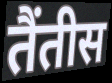
तैंतीस